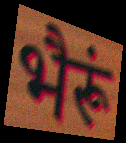
भैरूं